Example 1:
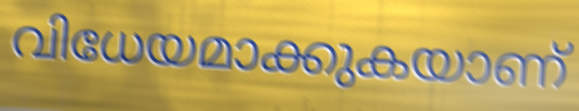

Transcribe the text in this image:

വിധേയമാക്കുകയാണ്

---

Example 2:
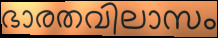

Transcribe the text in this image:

ഭാരതവിലാസം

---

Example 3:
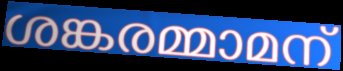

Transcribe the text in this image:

ശങ്കരമ്മാമന്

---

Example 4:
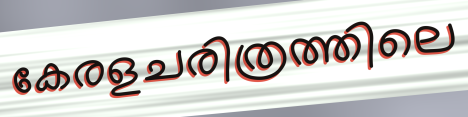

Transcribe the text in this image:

കേരളചരിത്രത്തിലെ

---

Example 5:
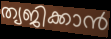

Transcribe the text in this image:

ത്യജിക്കാൻ